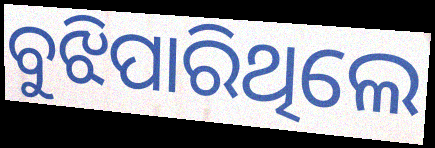
ବୁଝିପାରିଥିଲେ